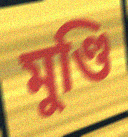
মুণ্ডি